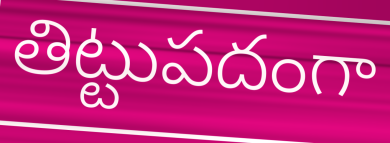
తిట్టుపదంగా